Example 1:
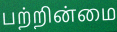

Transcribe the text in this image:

பற்றின்மை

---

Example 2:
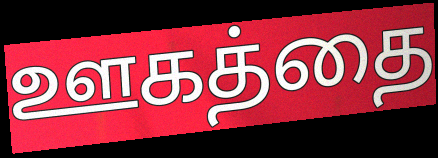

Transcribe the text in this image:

ஊகத்தை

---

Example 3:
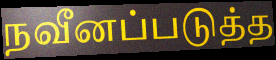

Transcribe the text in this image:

நவீனப்படுத்த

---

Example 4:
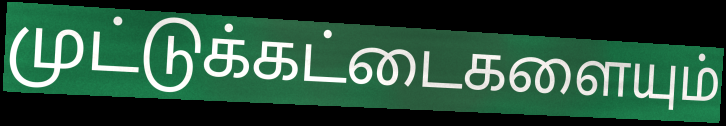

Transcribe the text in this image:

முட்டுக்கட்டைகளையும்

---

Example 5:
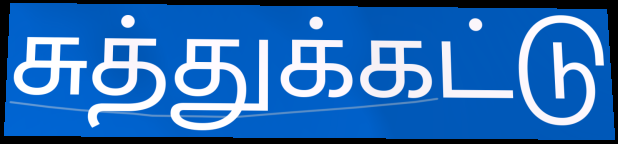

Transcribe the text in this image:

சுத்துக்கட்டு